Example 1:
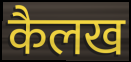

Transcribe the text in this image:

कैलख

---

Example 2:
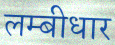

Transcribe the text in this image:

लम्बीधार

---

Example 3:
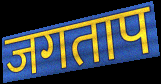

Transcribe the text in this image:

जगताप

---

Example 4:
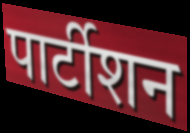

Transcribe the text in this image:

पार्टीशन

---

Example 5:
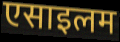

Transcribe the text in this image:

एसाइलम